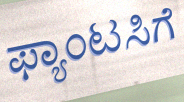
ಫ್ಯಾಂಟಸಿಗೆ